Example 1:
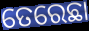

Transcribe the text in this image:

ତେରେଛା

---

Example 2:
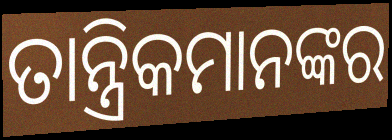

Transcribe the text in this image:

ତାନ୍ତ୍ରିକମାନଙ୍କର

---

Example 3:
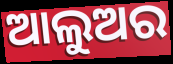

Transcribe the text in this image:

ଆଲୁଅର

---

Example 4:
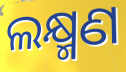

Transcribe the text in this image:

ଲକ୍ଷ୍ମଣ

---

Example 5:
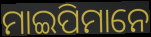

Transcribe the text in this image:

ମାଇପିମାନେ